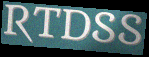
RTDSS